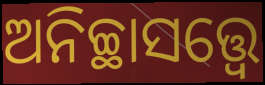
ଅନିଚ୍ଛାସତ୍ତ୍ବେ